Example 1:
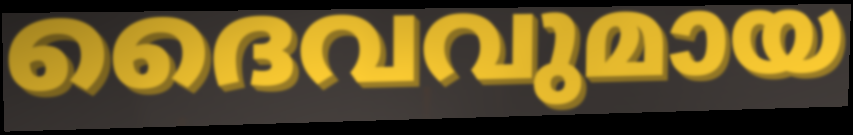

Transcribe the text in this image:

ദൈവവുമായ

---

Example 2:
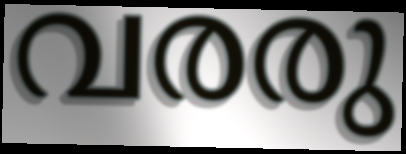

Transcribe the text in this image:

വരരു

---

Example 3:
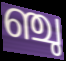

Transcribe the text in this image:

ഞ്ചു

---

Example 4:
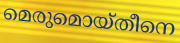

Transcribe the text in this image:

മെരുമൊയ്തീനെ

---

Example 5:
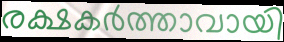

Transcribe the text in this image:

രക്ഷകർത്താവായി